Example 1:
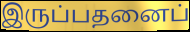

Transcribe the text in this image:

இருப்பதனைப்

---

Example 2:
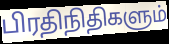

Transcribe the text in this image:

பிரதிநிதிகளும்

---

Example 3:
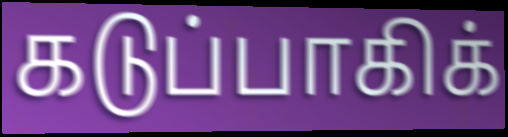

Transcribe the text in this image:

கடுப்பாகிக்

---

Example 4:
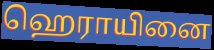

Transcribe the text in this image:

ஹெராயினை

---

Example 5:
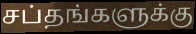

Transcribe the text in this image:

சப்தங்களுக்கு